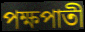
পক্ষপাতী